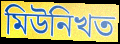
মিউনিখত